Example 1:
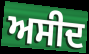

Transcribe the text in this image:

ਅਸੀਦ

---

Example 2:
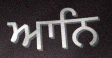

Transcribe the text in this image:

ਆਨਿ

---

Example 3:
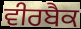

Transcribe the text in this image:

ਵੀਰਬੈਕ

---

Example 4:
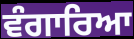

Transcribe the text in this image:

ਵੰਗਾਰਿਆ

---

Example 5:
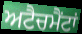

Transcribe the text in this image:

ਅਟੈਚਮੈਂਟਾਂ